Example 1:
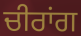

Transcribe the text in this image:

ਚੀਰਾਂਗ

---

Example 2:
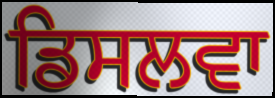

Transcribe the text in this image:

ਡਿਸਲਵਾ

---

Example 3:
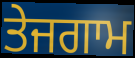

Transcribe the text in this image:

ਤੇਜਗਾਮ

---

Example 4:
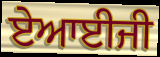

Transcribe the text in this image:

ਏਆਈਜੀ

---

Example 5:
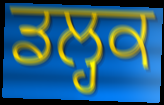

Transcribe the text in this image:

ਡਲ੍ਹਕ